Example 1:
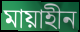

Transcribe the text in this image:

মায়াহীন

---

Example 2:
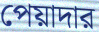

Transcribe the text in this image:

পেয়াদার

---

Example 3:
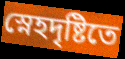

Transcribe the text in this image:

স্নেহদৃষ্টিতে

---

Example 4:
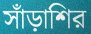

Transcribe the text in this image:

সাঁড়াশির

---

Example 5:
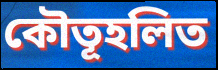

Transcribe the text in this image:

কৌতূহলিত